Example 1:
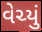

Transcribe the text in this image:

વેચ્યું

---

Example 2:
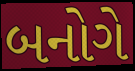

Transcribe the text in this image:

બનોગે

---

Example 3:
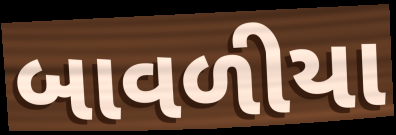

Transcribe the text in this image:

બાવળીયા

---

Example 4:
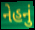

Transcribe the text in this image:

નેહનું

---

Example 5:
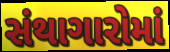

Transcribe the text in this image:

સંથાગારોમાં